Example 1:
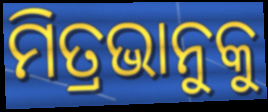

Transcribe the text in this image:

ମିତ୍ରଭାନୁକୁ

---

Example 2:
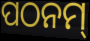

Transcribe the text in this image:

ପଠନମ୍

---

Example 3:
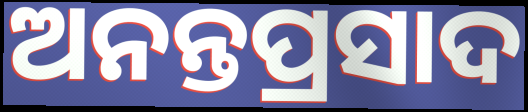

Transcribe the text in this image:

ଅନନ୍ତପ୍ରସାଦ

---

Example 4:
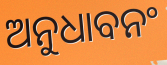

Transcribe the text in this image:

ଅନୁଧାବନଂ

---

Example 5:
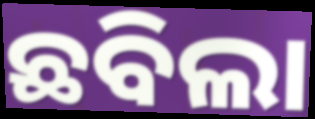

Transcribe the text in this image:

ଛବିଲା